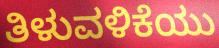
ತಿಳುವಳಿಕೆಯು